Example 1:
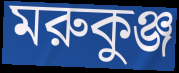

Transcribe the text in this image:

মরুকুঞ্জ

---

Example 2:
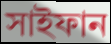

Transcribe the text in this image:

সাইফান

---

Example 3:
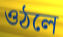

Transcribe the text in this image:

ওঠলে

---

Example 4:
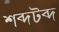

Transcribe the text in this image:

শব্দটব্দ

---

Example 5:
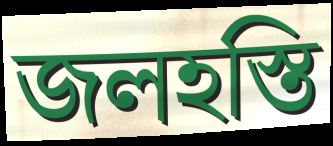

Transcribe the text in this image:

জলহস্তি